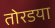
तोरडया